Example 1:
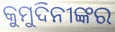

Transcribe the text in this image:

କୁମୁଦିନୀଙ୍କର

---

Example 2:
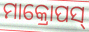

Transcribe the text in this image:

ମାକ୍ରୋପସ୍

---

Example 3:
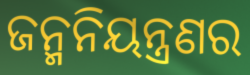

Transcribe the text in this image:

ଜନ୍ମନିୟନ୍ତ୍ରଣର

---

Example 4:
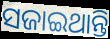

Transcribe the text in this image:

ସଜାଇଥାନ୍ତି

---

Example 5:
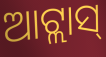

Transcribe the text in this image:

ଆଟ୍ଲାସ୍